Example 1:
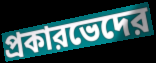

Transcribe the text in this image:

প্রকারভেদের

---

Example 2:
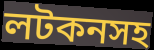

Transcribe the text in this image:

লটকনসহ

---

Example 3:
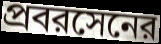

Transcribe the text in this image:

প্রবরসেনের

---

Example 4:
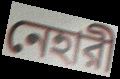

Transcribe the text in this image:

নেহারী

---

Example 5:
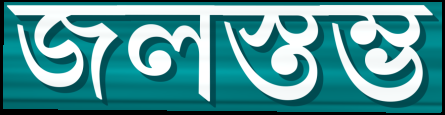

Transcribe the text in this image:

জলস্তম্ভ